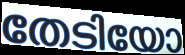
തേടിയോ